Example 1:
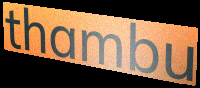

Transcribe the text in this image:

thambu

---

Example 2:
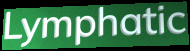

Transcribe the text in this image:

Lymphatic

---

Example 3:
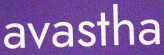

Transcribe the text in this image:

avastha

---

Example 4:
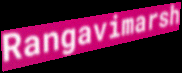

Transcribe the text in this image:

Rangavimarsh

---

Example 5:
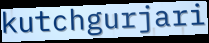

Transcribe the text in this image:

kutchgurjari